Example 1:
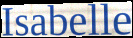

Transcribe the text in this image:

Isabelle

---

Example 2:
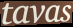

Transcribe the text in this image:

tavas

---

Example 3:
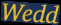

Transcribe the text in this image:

Wedd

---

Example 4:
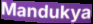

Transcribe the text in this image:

Mandukya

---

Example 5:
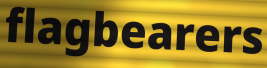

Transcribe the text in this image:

flagbearers